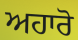
ਅਹਾਰੋ